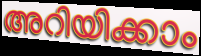
അറിയിക്കാം